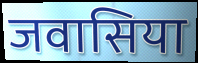
जवासिया